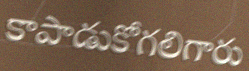
కాపాడుకోగలిగారు